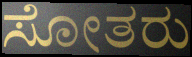
ಸೋತರು